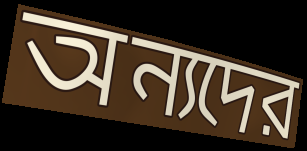
অন্যদের